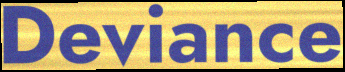
Deviance